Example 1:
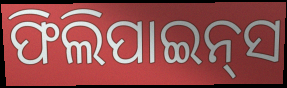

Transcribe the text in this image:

ଫିଲିପାଇନ୍‍ସ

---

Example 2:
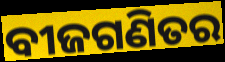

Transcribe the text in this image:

ବୀଜଗଣିତର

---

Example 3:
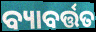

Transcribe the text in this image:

ବ୍ୟାବର୍ତ୍ତତ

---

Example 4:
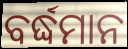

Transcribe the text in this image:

ବର୍ଦ୍ଧମାନ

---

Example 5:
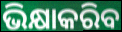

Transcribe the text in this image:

ଭିକ୍ଷାକରିବ